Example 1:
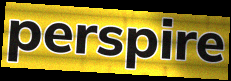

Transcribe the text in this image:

perspire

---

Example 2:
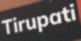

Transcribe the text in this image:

Tirupati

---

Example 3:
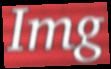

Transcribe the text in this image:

Img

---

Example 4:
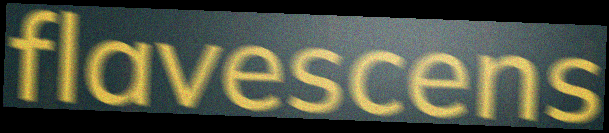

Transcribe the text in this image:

flavescens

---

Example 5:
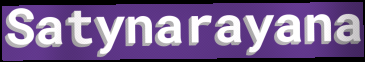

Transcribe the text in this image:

Satynarayana